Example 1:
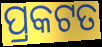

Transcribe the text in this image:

ପ୍ରକଟତ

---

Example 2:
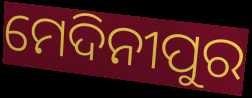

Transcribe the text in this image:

ମେଦିନୀପୁର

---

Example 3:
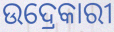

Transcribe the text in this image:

ଉଦ୍ରେକାରୀ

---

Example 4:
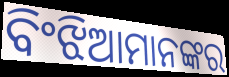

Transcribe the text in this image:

ବିଂଝିଆମାନଙ୍କର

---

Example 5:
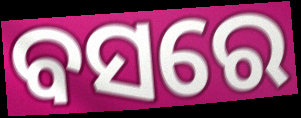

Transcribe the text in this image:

ବସରେ